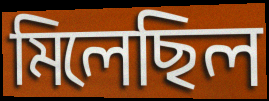
মিলেছিল